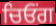
ਚਿਓਂਗ